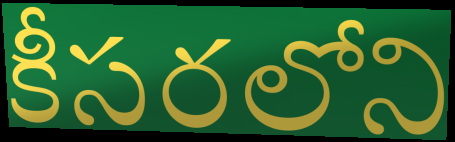
కీసరలోని